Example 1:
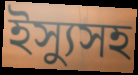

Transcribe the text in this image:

ইস্যুসহ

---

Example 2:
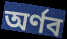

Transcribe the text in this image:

অর্ণব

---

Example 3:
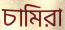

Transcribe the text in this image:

চামিরা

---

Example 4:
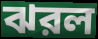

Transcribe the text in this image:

ঝরল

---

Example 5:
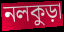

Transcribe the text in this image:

নলকুড়া